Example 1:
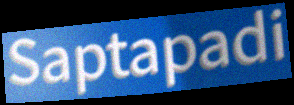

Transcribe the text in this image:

Saptapadi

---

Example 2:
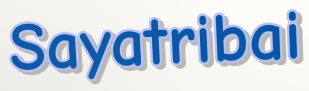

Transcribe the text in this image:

Sayatribai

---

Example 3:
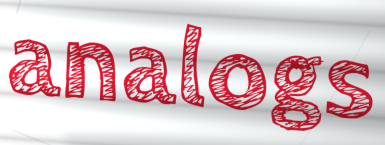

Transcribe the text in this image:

analogs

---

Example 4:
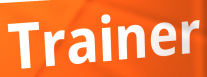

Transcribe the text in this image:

Trainer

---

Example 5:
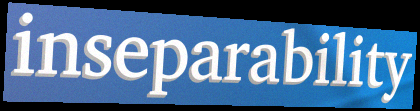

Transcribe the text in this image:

inseparability